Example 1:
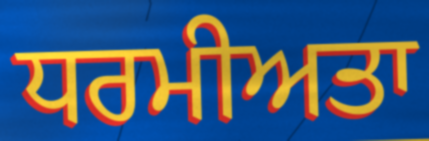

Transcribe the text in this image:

ਧਰਮੀਅਤਾ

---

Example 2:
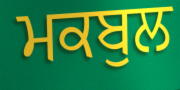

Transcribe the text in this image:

ਮਕਬੁਲ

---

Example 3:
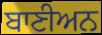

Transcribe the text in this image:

ਬਾਣੀਅਨ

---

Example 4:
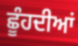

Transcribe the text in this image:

ਛੂੰਹਦੀਆਂ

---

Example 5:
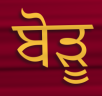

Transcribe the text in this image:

ਬੋੜੂ